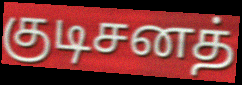
குடிசனத்